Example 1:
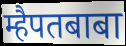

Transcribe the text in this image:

म्हैपतबाबा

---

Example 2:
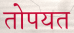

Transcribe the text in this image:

तोपयत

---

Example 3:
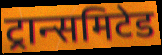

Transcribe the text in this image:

ट्रान्समिटेड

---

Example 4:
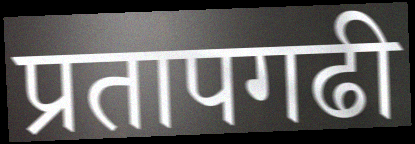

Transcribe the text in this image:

प्रतापगढी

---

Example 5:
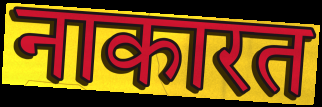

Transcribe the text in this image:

नाकारत